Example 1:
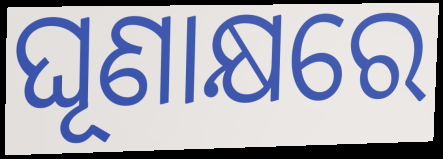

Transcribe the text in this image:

ଘୂଣାକ୍ଷରେ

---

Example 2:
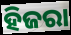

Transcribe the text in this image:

ହିଜରା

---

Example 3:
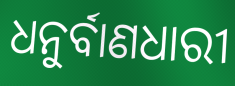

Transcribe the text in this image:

ଧନୁର୍ବାଣଧାରୀ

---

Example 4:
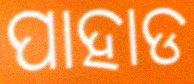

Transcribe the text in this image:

ପାହାଡ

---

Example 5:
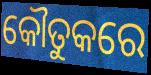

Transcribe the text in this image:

କୌତୁକରେ